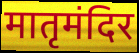
मातृमंदिर